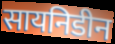
सायनिडीन